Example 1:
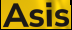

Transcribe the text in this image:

Asis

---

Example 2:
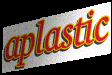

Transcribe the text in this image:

aplastic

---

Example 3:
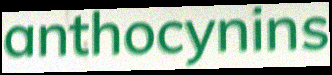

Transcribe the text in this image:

anthocynins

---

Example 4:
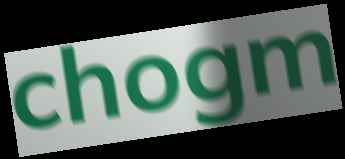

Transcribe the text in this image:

chogm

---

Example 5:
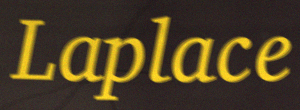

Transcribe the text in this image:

Laplace